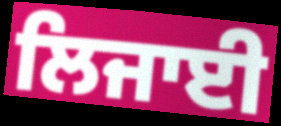
ਲਿਜਾਈ